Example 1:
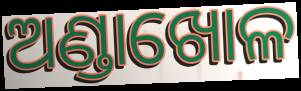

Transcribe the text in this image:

ଅଣ୍ଡାଖୋଳ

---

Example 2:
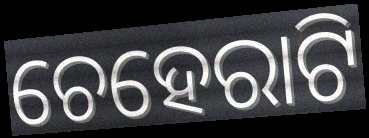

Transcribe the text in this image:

ଚେହେରାଟି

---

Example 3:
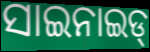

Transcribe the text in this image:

ସାଇନାଇଡ୍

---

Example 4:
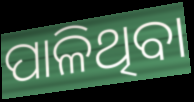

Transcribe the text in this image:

ପାଳିଥିବା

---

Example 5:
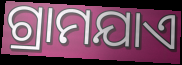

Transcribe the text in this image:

ଗ୍ରାମଯାଏ